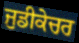
ਜੁਡੀਕੇਚਰ